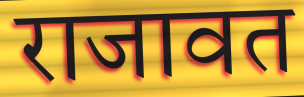
राजावत